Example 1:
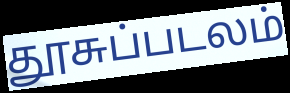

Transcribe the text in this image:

தூசுப்படலம்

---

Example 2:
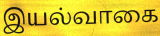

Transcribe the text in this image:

இயல்வாகை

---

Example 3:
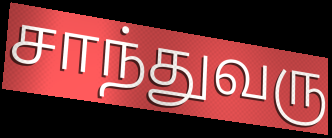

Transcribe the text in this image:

சாந்துவரு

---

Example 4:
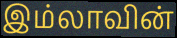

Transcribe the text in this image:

இம்லாவின்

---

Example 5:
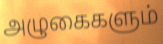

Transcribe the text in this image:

அழுகைகளும்